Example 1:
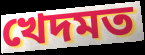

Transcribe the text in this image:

খেদমত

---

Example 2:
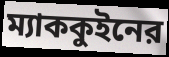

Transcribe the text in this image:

ম্যাককুইনের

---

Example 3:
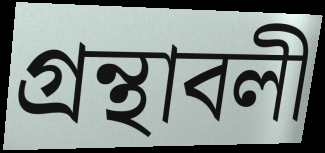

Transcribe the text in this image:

গ্রন্থাবলী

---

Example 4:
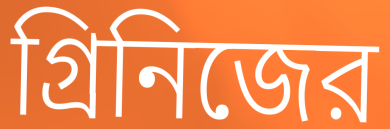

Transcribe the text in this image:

গ্রিনিজের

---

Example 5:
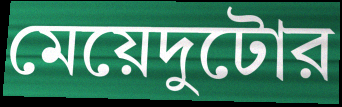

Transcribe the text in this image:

মেয়েদুটোর